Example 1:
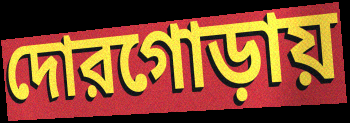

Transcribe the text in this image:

দোরগোড়ায়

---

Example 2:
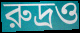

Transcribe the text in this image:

রুদ্রও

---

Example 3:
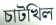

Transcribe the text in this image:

চাটখিল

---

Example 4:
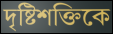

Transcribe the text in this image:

দৃষ্টিশক্তিকে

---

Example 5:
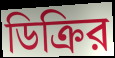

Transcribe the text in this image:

ডিক্রির